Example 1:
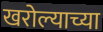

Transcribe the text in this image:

खरोल्याच्या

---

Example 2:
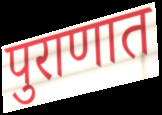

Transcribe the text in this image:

पुराणात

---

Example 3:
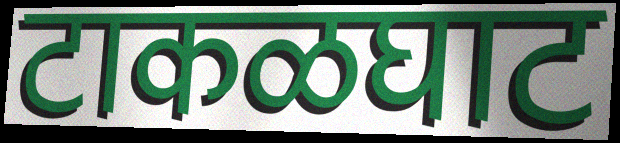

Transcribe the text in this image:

टाकळघाट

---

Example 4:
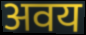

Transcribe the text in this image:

अवय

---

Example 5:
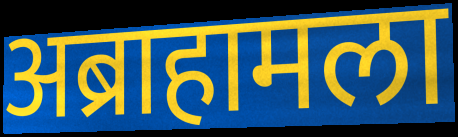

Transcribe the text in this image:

अब्राहामला